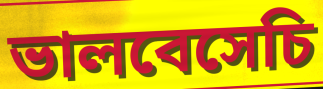
ভালবেসেচি